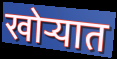
खोर्‍यात